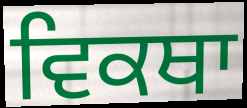
ਵਿਕਥਾ